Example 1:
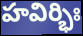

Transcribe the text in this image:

హవిర్భిః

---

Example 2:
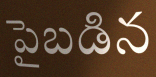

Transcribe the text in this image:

పైబడిన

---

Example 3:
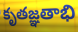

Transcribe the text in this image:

కృతజ్ఞతాభి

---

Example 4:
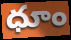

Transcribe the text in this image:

ధూం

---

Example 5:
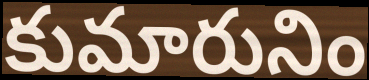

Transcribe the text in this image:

కుమారునిం